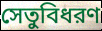
সেতুবিধরণ